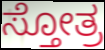
ಸ್ತೋತ್ರ